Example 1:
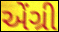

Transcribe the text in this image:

એંગ્રી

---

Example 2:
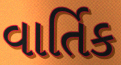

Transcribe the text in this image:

વાર્તિક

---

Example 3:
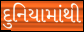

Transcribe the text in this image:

દુનિયામાંથી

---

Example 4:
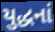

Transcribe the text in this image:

યુદ્ધનાં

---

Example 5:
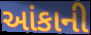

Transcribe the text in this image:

આંકાની